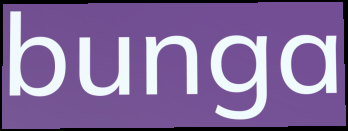
bunga